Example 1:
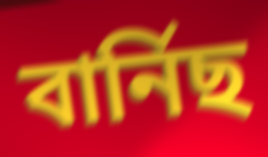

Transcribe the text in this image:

বাৰ্নিছ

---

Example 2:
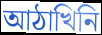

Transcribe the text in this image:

আঠাখিনি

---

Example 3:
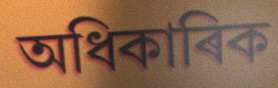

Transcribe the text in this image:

অধিকাৰিক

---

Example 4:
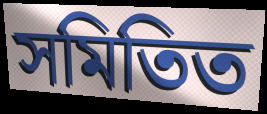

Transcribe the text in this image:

সমিতিত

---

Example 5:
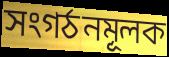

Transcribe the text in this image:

সংগঠনমূলক